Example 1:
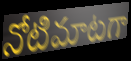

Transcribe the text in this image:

నోటిమాటగా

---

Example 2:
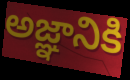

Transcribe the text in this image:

అజ్ఞానికి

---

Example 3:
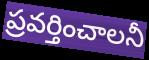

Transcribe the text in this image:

ప్రవర్తించాలనీ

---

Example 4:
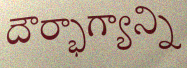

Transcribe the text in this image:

దౌర్భాగ్యాన్ని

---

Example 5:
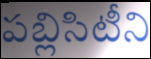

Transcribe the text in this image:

పబ్లిసిటీని